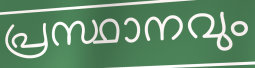
പ്രസ്ഥാനവും